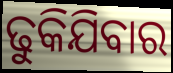
ଢୁକିଯିବାର